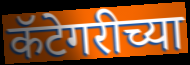
कॅटेगरीच्या